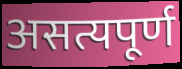
असत्यपूर्ण